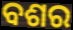
ବଶର